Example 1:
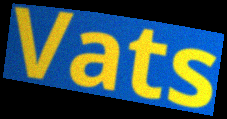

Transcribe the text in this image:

Vats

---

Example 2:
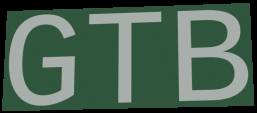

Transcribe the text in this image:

GTB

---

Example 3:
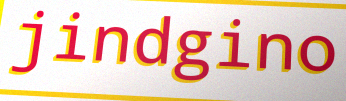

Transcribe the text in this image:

jindgino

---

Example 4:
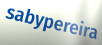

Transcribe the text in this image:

sabypereira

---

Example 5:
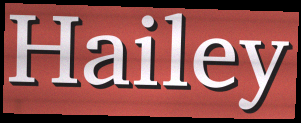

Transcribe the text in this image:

Hailey